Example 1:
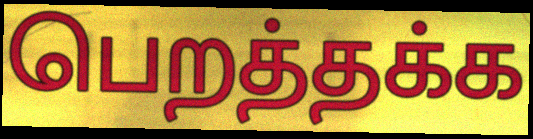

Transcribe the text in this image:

பெறத்தக்க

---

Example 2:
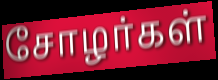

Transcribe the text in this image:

சோழர்கள்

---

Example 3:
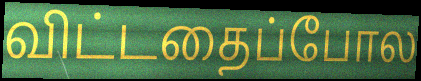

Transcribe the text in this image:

விட்டதைப்போல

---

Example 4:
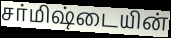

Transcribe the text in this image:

சர்மிஷ்டையின்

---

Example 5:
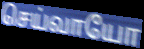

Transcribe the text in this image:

செய்வாயோ